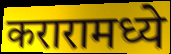
करारामध्ये